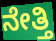
ನೇತ್ತಿ